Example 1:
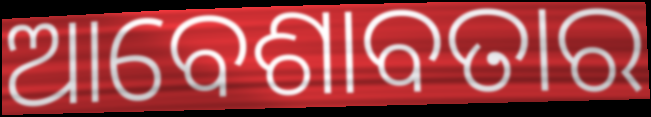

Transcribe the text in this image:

ଆବେଶାବତାର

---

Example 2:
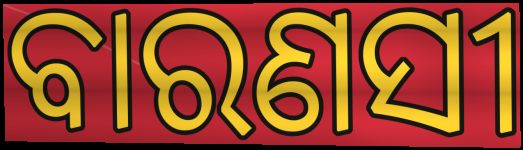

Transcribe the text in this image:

ବାରଣସୀ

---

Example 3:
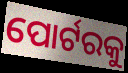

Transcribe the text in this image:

ପୋର୍ଟରକୁ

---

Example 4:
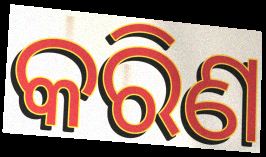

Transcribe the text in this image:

କରିଣ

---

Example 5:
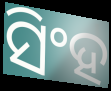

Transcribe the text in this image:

ସିଂହ